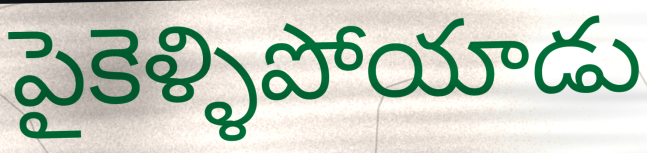
పైకెళ్ళిపోయాడు